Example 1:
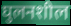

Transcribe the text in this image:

घुलनशील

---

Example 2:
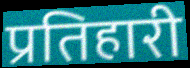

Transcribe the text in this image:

प्रतिहारी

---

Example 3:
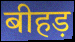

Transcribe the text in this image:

बीहड़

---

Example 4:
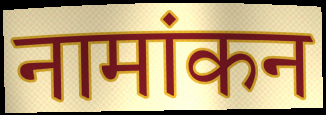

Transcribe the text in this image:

नामांकन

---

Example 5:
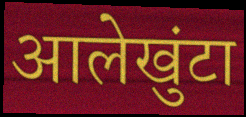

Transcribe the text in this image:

आलेखुंटा